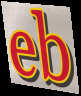
eb